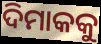
ଦିମାକକୁ